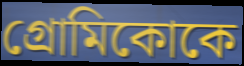
গ্রোমিকোকে